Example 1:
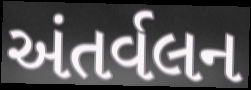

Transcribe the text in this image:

અંતર્વલન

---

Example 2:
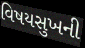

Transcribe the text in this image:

વિષયસુખની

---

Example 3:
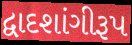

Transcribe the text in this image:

દ્વાદશાંગીરૂપ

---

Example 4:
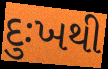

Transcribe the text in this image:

દુઃખથી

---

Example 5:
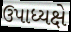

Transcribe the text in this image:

ઉપાધ્યક્ષે